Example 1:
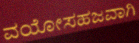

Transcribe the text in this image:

ವಯೋಸಹಜವಾಗಿ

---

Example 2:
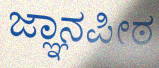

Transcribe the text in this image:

ಜ್ಞಾನಪೀಠ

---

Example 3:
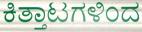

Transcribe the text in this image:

ಕಿತ್ತಾಟಗಳಿಂದ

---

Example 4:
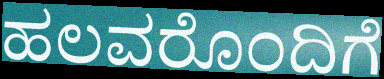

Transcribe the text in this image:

ಹಲವರೊಂದಿಗೆ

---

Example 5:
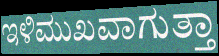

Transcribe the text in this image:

ಇಳಿಮುಖವಾಗುತ್ತಾ